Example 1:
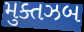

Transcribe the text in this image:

મુક્તઝબ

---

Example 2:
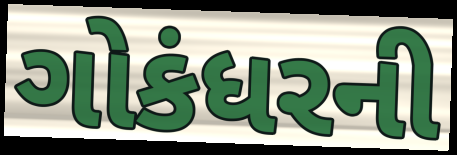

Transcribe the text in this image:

ગોકંધરની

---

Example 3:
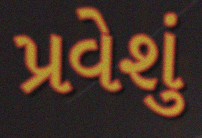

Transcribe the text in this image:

પ્રવેશું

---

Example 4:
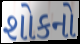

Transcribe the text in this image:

શોકનો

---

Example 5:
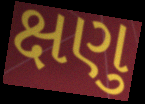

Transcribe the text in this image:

ક્ષણુ